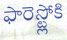
ఫారెస్ట్లోకి